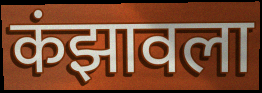
कंझावला